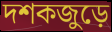
দশকজুড়ে